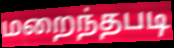
மறைந்தபடி